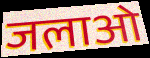
जलाओ